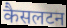
कैसलटन